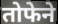
तोफेने